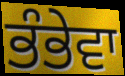
ਭੰਭੇਵਾ